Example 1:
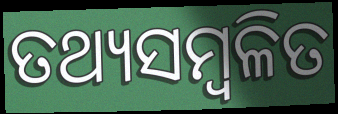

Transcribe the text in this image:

ତଥ୍ୟସମ୍ୱଳିତ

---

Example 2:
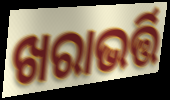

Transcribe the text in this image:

ଖରାଭର୍ତ୍ତି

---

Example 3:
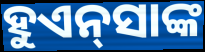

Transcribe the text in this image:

ହୁଏନ୍‍ସାଙ୍କ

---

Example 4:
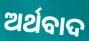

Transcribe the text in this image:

ଅର୍ଥବାଦ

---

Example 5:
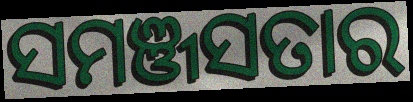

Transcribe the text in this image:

ସମଞ୍ଜସତାର